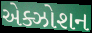
એક્ઝોશન